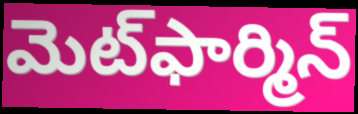
మెట్‌ఫార్మిన్